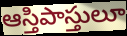
ఆస్తిపాస్తులూ